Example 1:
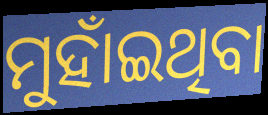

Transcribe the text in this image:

ମୁହାଁଇଥିବା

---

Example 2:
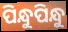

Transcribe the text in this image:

ପିନ୍ଧୁପିନ୍ଧୁ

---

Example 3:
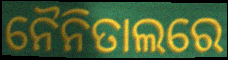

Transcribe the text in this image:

ନୈନିତାଲରେ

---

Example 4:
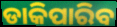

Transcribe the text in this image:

ଡାକିପାରିବ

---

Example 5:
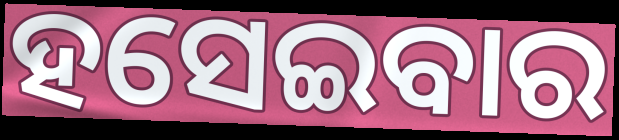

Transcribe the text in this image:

ହସେଇବାର